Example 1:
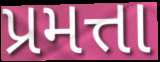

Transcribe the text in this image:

પ્રમત્તા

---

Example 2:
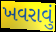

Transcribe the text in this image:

ખવરાવું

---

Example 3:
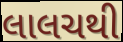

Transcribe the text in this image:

લાલચથી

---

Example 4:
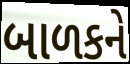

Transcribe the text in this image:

બાળકને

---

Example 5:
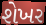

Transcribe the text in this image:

શેખર